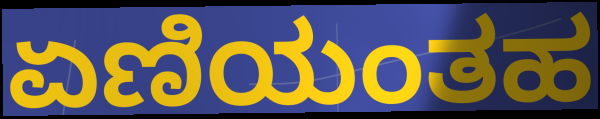
ಏಣಿಯಂತಹ